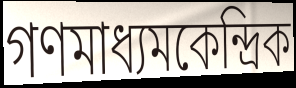
গণমাধ্যমকেন্দ্রিক